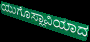
ಯುಗೊಸ್ಲಾವಿಯಾದ